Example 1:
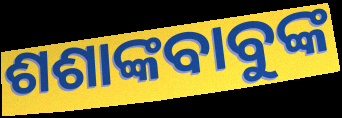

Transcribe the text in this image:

ଶଶାଙ୍କବାବୁଙ୍କ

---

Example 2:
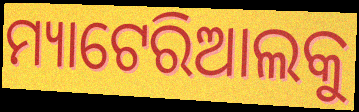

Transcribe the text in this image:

ମ୍ୟାଟେରିଆଲକୁ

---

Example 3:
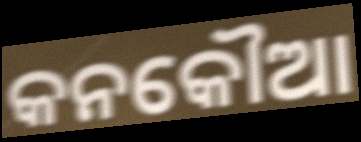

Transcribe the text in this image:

କନକୌଆ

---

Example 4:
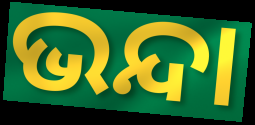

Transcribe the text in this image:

ଭନ୍ଦା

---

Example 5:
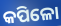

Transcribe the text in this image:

କପିଳୋ